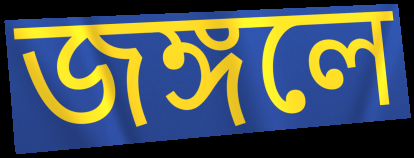
জঙ্গলে